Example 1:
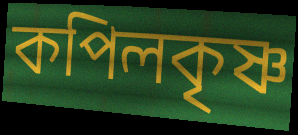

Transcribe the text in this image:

কপিলকৃষ্ণ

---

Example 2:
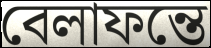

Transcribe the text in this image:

বেলাফন্তে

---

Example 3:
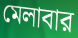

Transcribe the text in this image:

মেলাবার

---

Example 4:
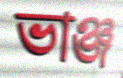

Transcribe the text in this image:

ভাঞ্জ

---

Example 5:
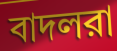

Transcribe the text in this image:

বাদলরা